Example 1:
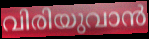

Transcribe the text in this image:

വിരിയുവാൻ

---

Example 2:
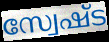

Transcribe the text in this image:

സ്വേഷ്ട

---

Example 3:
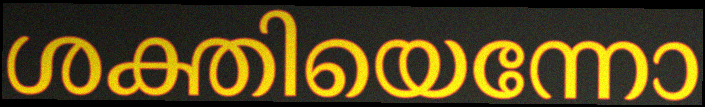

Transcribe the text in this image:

ശക്തിയെന്നോ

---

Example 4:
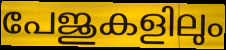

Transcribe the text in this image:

പേജുകളിലും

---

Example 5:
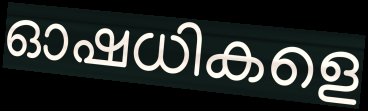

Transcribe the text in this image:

ഓഷധികളെ